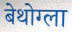
बेथोग्ला